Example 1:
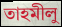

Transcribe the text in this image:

তাহমীলু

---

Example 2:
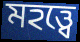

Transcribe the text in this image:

মহত্ত্বে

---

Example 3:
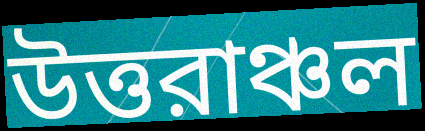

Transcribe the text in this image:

উত্তরাঞ্চল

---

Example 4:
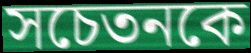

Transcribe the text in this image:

সচেতনকে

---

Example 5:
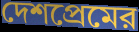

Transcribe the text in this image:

দেশপ্রেমের